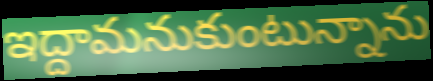
ఇద్దామనుకుంటున్నాను